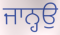
ਜਾਨ੍ਹਉ